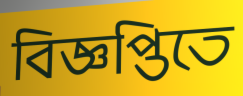
বিজ্ঞপ্তিতে